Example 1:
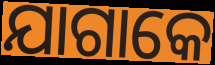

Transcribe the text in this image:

ଯାଗାକେ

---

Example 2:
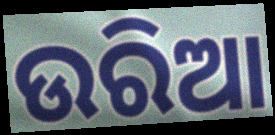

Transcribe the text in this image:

ଉରିଆ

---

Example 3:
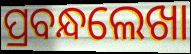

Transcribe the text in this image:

ପ୍ରବନ୍ଧଲେଖା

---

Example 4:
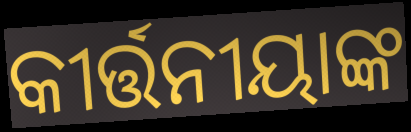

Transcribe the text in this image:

କୀର୍ତ୍ତନୀୟାଙ୍କ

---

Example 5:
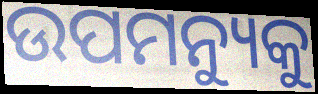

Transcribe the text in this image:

ଉପମନ୍ୟୁକୁ